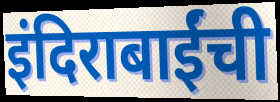
इंदिराबाईंची